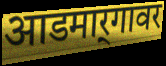
आडमार्गावर